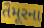
તૈમૂરના